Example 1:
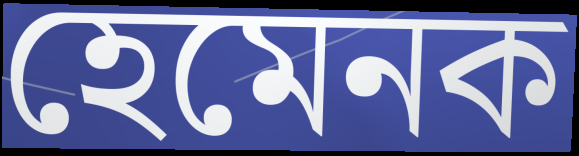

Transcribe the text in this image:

হেমেনক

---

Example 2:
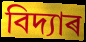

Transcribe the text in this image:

বিদ্যাৰ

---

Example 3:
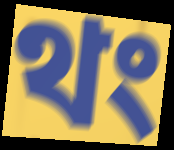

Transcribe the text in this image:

থং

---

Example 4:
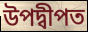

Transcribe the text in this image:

উপদ্বীপত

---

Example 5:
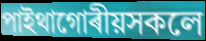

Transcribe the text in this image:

পাইথাগোৰীয়সকলে